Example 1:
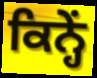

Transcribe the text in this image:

ਕਿਨ੍ਹੇਂ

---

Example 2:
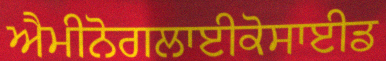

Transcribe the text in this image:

ਐਮੀਨੋਗਲਾਈਕੋਸਾਈਡ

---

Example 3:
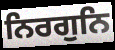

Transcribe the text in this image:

ਨਿਰਗੁਨਿ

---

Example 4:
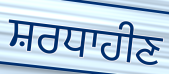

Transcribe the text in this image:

ਸ਼ਰਧਾਹੀਣ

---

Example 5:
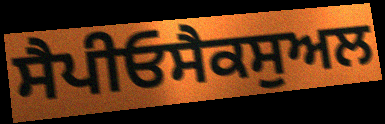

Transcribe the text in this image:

ਸੈਪੀਓਸੈਕਸੁਅਲ